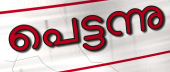
പെട്ടന്നു